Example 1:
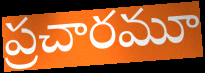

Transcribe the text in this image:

ప్రచారమూ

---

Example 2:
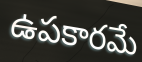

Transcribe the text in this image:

ఉపకారమే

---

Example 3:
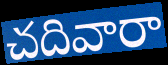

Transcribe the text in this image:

చదివారా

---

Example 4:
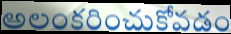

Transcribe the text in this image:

అలంకరించుకోవడం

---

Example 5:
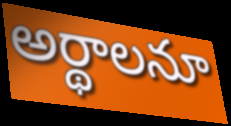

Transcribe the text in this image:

అర్థాలనూ